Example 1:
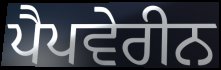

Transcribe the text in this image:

ਪੈਪਵੇਰੀਨ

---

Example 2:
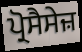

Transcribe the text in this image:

ਪ੍ਰੋਸੈਸੇਜ਼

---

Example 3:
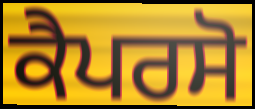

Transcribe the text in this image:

ਕੈਪਰਸੋ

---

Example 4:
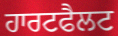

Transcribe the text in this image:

ਹਾਰਟਫੈਲਟ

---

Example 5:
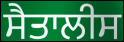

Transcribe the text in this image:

ਸੈਤਾਲੀਸ